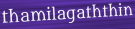
thamilagaththin